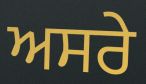
ਅਸਰੇ